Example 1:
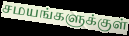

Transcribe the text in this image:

சமயங்களுக்குள்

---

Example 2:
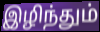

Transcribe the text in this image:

இழிந்தும்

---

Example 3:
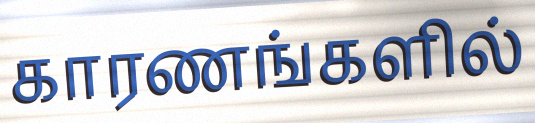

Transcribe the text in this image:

காரணங்களில்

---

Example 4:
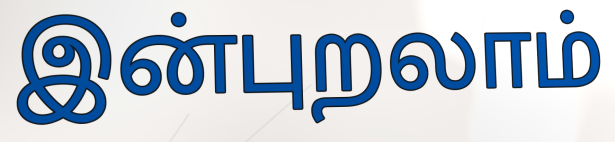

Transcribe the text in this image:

இன்புறலாம்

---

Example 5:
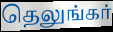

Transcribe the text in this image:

தெலுங்கர்